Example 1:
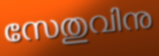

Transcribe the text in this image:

സേതുവിനു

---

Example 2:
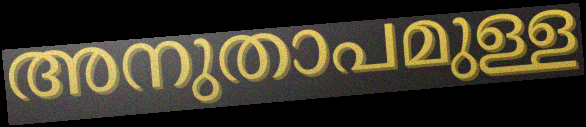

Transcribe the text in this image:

അനുതാപമുള്ള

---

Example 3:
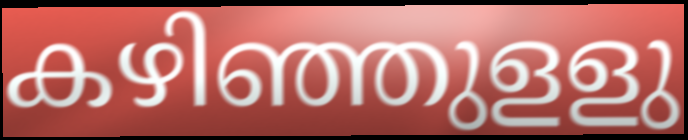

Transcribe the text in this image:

കഴിഞ്ഞുളളു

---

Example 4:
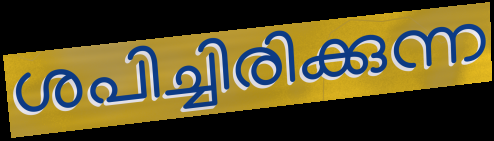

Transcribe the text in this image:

ശപിച്ചിരിക്കുന്ന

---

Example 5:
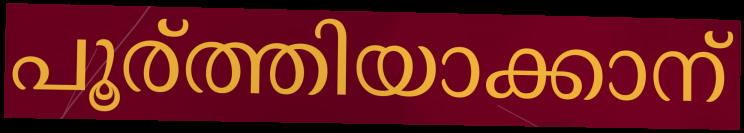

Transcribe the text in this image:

പൂര്ത്തിയാക്കാന്